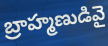
బ్రాహ్మణుడివై